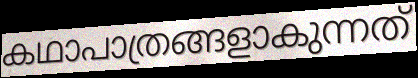
കഥാപാത്രങ്ങളാകുന്നത്